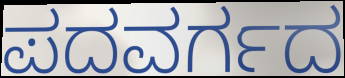
ಪದವರ್ಗದ